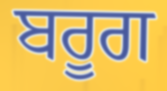
ਬਰੂਗ